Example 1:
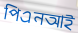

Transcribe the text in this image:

পিএনআই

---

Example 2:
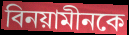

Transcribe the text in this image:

বিনয়ামীনকে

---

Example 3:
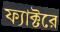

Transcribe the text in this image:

ফ্যাক্টরে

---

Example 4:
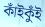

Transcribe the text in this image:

কাঁইকুঁই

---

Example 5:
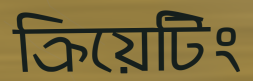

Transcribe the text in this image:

ক্রিয়েটিং